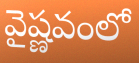
వైష్ణవంలో